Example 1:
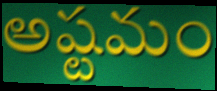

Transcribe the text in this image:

అష్టమం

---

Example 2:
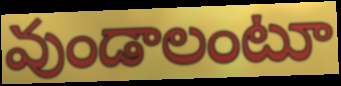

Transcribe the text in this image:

వుండాలంటూ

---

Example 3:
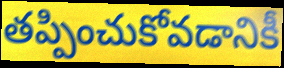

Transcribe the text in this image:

తప్పించుకోవడానికీ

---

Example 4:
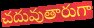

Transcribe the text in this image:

చదువుతారుగా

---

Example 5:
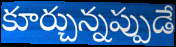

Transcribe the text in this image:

కూర్చున్నప్పుడే